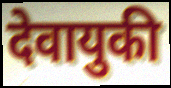
देवायुकी